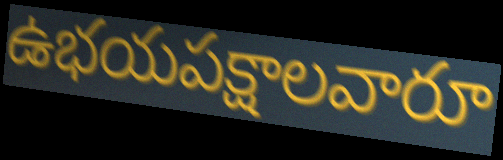
ఉభయపక్షాలవారూ